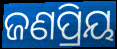
ଜଣପ୍ରିୟ